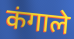
कंगाले